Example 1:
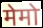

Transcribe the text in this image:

मेमो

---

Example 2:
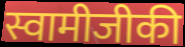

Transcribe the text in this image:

स्वामीजीकी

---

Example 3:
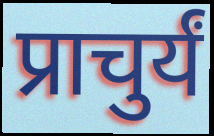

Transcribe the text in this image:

प्राचुर्यं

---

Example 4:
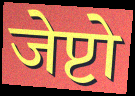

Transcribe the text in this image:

जेप्टो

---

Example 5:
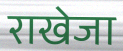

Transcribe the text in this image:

राखेजा